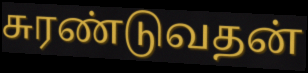
சுரண்டுவதன்